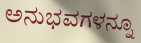
ಅನುಭವಗಳನ್ನೂ